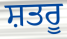
ਸ਼ਤਰੂ